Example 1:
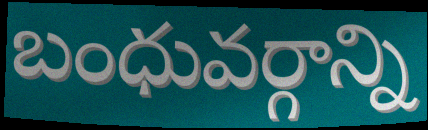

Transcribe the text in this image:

బంధువర్గాన్ని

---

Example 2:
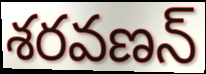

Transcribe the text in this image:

శరవణన్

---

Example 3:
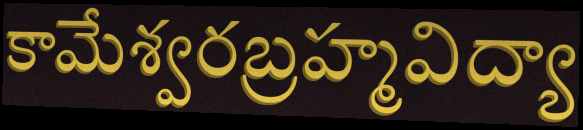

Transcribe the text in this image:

కామేశ్వరబ్రహ్మవిద్యా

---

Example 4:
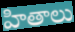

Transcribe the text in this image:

హితాలు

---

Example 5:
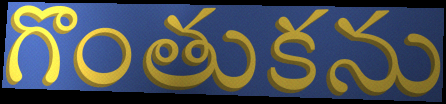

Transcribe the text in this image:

గొంతుకను